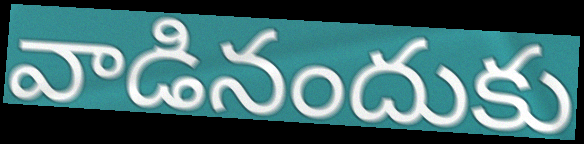
వాడినందుకు